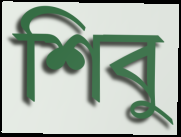
শিবু